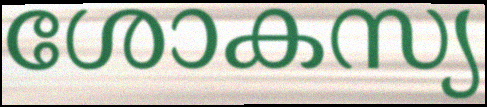
ശോകസ്യ